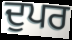
ਦੁਪਰ